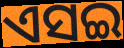
ଏସଇ